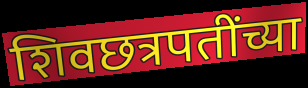
शिवछत्रपतींच्या